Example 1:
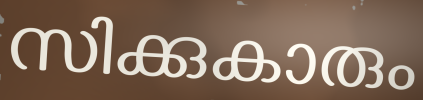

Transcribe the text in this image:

സിക്കുകാരും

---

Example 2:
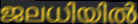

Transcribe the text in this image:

ജലധിയിൽ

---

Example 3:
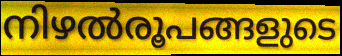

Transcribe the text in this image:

നിഴൽരൂപങ്ങളുടെ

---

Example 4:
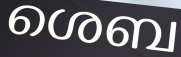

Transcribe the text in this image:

ശെബ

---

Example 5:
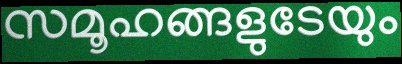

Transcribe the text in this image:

സമൂഹങ്ങളുടേയും